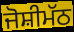
ਜੋਸ਼ੀਮੱਠ